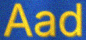
Aad